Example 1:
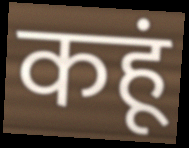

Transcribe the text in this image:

कहूं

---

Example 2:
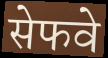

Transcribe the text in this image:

सेफवे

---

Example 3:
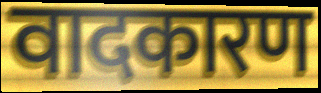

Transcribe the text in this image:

वादकारण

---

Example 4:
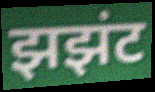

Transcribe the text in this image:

झझंट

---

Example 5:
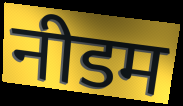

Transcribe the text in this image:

नीडम